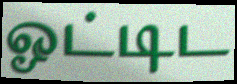
ஓட்டிட